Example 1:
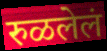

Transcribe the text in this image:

रुळलेलं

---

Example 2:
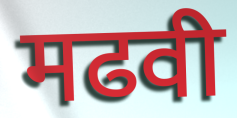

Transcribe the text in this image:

मढवी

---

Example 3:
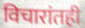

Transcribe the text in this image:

विचारांतही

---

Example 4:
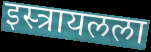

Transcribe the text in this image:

इस्त्रायलला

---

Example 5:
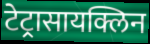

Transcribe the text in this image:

टेट्रासायक्लिन